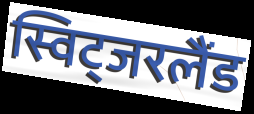
स्विट्जरलैंड